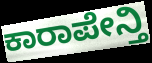
ಕಾರಾಪೇನ್ತಿ